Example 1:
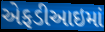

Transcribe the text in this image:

એફડીઆઇમાં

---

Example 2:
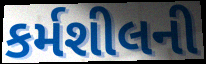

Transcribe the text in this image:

કર્મશીલની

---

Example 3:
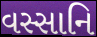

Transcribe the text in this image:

વસ્સાનિ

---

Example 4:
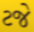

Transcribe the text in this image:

ટજે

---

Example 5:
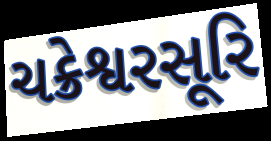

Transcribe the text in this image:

ચક્રેશ્વરસૂરિ